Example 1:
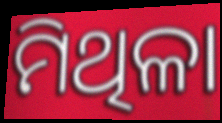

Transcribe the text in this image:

ମିଥିଳା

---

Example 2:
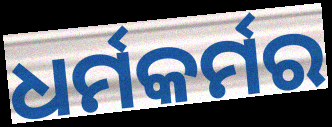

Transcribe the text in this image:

ଧର୍ମକର୍ମର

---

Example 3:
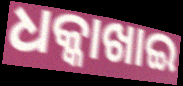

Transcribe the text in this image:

ଧକ୍କାଖାଇ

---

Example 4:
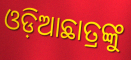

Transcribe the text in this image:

ଓଡ଼ିଆଛାତ୍ରଙ୍କୁ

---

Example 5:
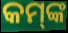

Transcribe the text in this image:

କମ୍‌ଙ୍କ